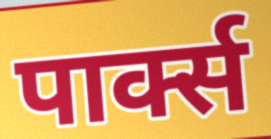
पार्क्स